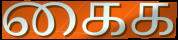
கைக